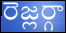
రెజ్లర్గా